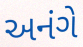
અનંગે